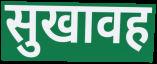
सुखावह